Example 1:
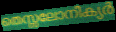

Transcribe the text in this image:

തെസ്സലോനീക്യർ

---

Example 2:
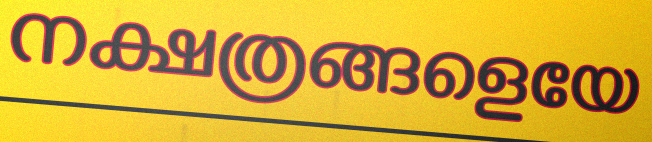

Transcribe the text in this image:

നക്ഷത്രങ്ങളെയേ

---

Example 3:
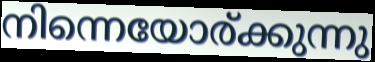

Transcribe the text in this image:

നിന്നെയോര്ക്കുന്നു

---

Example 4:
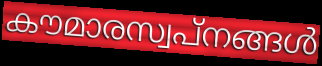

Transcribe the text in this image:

കൗമാരസ്വപ്നങ്ങൾ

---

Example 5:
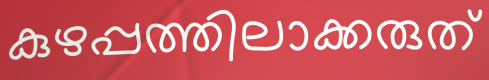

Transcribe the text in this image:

കുഴപ്പത്തിലാക്കരുത്